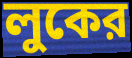
লুকের